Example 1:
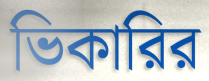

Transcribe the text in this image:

ভিকারির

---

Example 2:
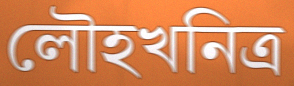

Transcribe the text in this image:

লৌহখনিত্র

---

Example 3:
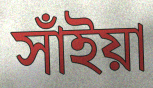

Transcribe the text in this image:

সাঁইয়া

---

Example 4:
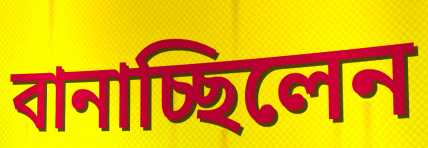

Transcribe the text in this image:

বানাচ্ছিলেন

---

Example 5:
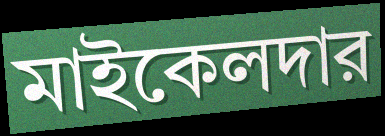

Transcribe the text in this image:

মাইকেলদার